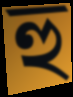
হু